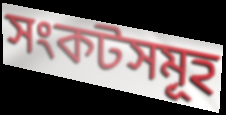
সংকটসমূহ